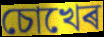
চোখেৰ